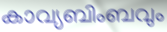
കാവ്യബിംബവും